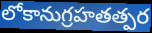
లోకానుగ్రహతత్పర